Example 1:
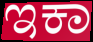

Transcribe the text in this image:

ಇಕಾ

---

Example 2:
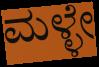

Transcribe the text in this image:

ಮಳ್ಳೇ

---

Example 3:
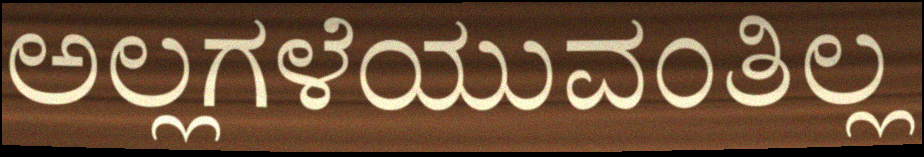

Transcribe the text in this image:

ಅಲ್ಲಗಳೆಯುವಂತಿಲ್ಲ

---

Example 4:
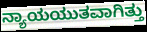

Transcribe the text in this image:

ನ್ಯಾಯಯುತವಾಗಿತ್ತು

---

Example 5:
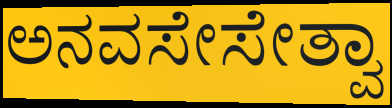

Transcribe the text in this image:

ಅನವಸೇಸೇತ್ವಾ